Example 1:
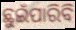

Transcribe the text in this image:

ଛୁଇଁପାରିବି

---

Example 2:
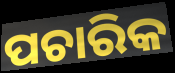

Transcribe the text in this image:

ପଚାରିକ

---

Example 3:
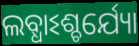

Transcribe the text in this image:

ଲବ୍ଧାଽଶ୍ଚର୍ଯ୍ୟୋ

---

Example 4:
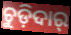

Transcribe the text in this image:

ଚୁଡ଼ିଦାର୍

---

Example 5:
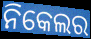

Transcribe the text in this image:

ନିକେଲର